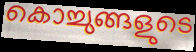
കൊച്ചുങ്ങളുടെ